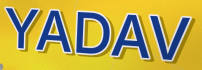
YADAV